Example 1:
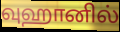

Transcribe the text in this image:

வுஹானில்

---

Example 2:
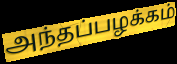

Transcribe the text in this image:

அந்தப்பழக்கம்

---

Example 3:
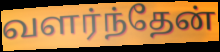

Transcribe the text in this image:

வளர்ந்தேன்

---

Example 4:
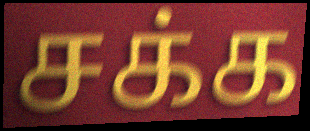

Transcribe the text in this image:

சக்க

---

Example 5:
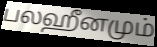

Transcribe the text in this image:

பலஹீனமும்